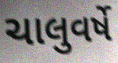
ચાલુવર્ષે